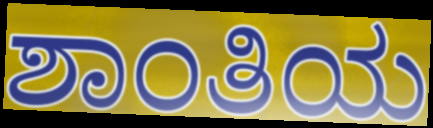
ಶಾಂತಿಯ